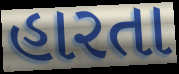
હારતા